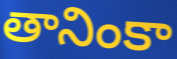
తానింకా